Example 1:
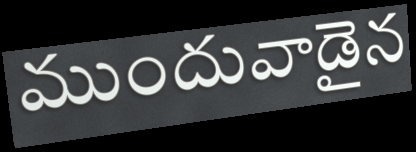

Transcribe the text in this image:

ముందువాడైన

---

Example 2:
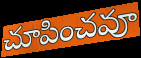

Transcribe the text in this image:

చూపించవూ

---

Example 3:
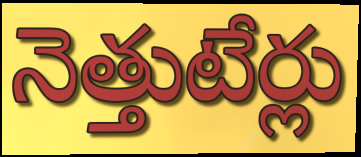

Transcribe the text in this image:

నెత్తుటేర్లు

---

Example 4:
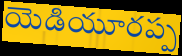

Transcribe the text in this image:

యెడియూరప్ప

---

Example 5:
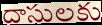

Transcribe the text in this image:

దాసులకు